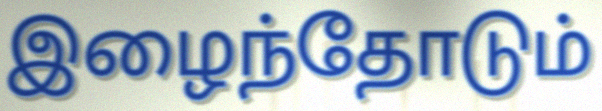
இழைந்தோடும்